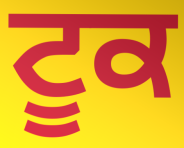
ਟੂਕ